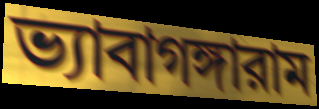
ভ্যাবাগঙ্গারাম